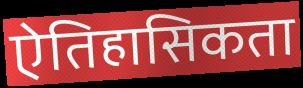
ऐतिहासिकता